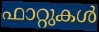
ഫാറ്റുകൾ